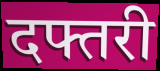
दफ्तरी